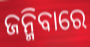
ଜନ୍ମିବାରେ